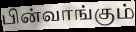
பின்வாங்கும்